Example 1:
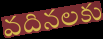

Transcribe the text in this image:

వదినలకు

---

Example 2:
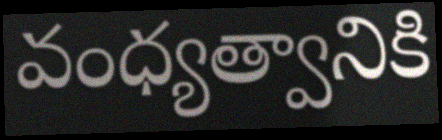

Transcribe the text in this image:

వంధ్యత్వానికి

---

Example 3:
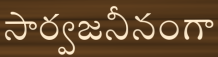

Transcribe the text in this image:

సార్వజనీనంగా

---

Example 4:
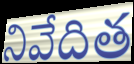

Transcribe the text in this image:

నివేదిత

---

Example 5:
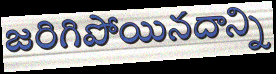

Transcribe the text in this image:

జరిగిపోయినదాన్ని